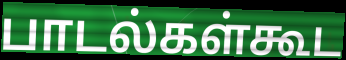
பாடல்கள்கூட